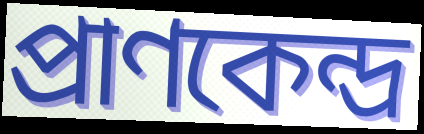
প্রাণকেন্দ্র